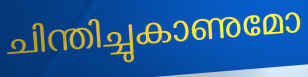
ചിന്തിച്ചുകാണുമോ